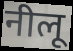
नीलू